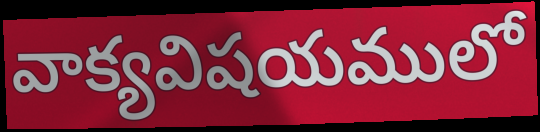
వాక్యవిషయములో